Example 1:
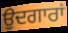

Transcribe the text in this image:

ਉਦਗਾਰਾਂ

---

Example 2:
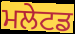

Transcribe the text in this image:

ਮਲੇਟਡ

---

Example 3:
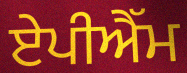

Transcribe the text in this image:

ਏਪੀਐੱਮ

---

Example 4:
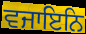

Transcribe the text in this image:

ਵਜਾਇਨਿ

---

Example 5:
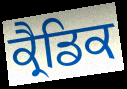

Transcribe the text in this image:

ਕ੍ਰੈਡਿਕ